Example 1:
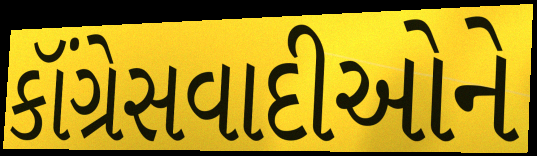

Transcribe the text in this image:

કૉંગ્રેસવાદીઓને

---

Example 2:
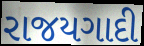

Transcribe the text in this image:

રાજયગાદી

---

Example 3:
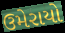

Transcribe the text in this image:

ઉમેરાયો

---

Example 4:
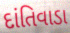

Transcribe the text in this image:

દાંતિવાડા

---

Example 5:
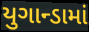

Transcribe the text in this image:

યુગાન્ડામાં